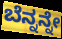
ಬೆನ್ನನ್ನೇ